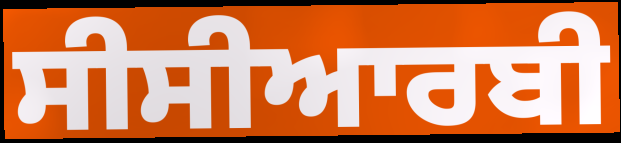
ਸੀਸੀਆਰਬੀ